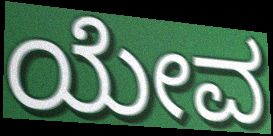
ಯೇವ